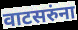
वाटसरुंना